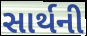
સાર્થની